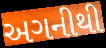
અગનીથી